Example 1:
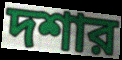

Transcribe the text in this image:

দশার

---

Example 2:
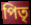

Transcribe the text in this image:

পিতৃ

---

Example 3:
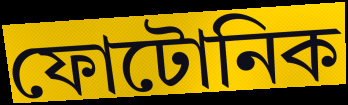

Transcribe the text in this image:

ফোটোনিক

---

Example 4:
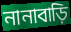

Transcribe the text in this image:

নানাবাড়ি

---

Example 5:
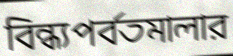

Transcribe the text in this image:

বিন্ধ্যপর্বতমালার